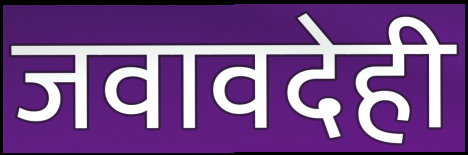
जवावदेही